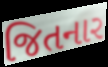
જિતનાર